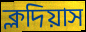
ক্লদিয়াস